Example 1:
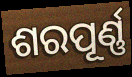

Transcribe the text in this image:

ଶରପୂର୍ଣ୍ଣ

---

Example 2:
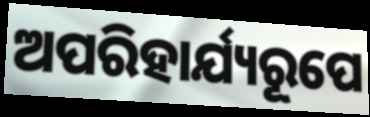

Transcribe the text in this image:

ଅପରିହାର୍ଯ୍ୟରୂପେ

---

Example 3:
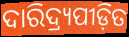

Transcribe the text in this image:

ଦାରିଦ୍ର୍ୟପୀଡ଼ିତ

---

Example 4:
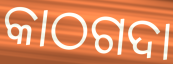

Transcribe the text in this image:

କାଠଗଦା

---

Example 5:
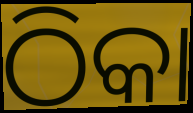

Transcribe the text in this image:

ଠିକା